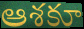
ఆశకూ